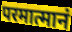
परमात्मानं